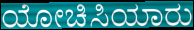
ಯೋಚಿಸಿಯಾರು